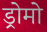
ड्रोमो